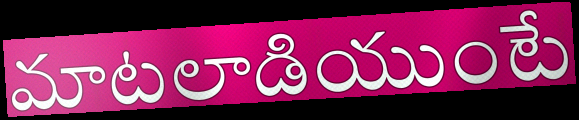
మాటలాడియుంటే